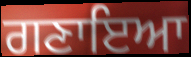
ਗਣਾਇਆ